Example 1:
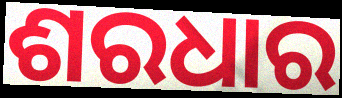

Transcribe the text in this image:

ଶରଧାର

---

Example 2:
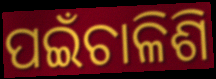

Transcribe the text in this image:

ପଇଁଚାଳିଶି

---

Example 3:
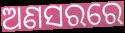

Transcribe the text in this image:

ଅଣସରରେ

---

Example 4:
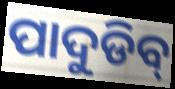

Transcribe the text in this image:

ପାଦୁଡିବ୍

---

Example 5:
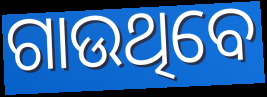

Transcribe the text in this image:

ଗାଉଥିବେ